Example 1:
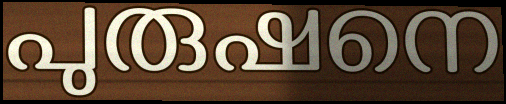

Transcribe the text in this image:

പുരുഷനെ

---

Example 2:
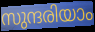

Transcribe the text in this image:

സുന്ദരിയാം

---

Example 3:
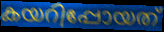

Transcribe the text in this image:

കയറിപ്പോയത്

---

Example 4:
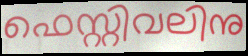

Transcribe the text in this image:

ഫെസ്റ്റിവലിനു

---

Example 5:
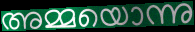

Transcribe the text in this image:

അമ്മയൊന്നു